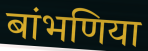
बांभणिया